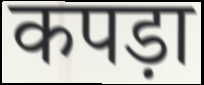
कपड़ा